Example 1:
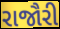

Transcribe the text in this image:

રાજૌરી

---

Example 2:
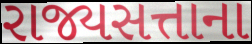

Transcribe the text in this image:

રાજ્યસત્તાના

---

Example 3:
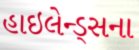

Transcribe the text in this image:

હાઇલેન્ડ્સના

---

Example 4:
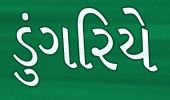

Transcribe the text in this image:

ડુંગરિયે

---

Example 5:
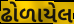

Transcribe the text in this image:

ઢોળાયેલ